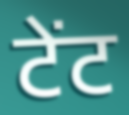
टेंट